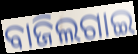
ବାଜିଲଗାଇ